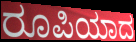
ರೂಪಿಯಾದ